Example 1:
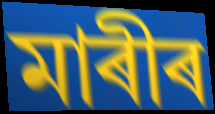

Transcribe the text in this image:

মাৰীৰ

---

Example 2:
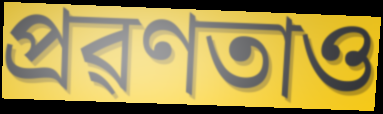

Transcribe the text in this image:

প্ৰৱণতাও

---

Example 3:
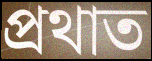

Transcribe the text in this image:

প্ৰথাত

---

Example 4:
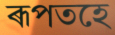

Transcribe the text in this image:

ৰূপতহে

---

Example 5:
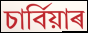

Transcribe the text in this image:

চাৰ্বিয়াৰ